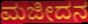
ಮಜೀದನ